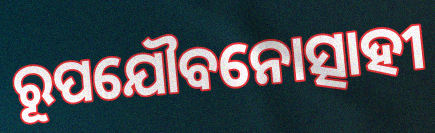
ରୂପଯୌବନୋତ୍ସାହୀ